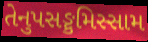
તેનુપસઙ્કમિસ્સામ